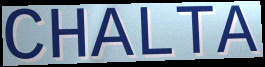
CHALTA